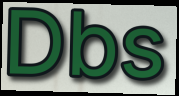
Dbs